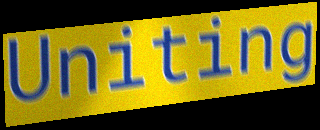
Uniting